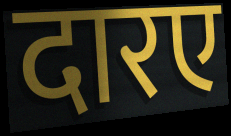
दारए